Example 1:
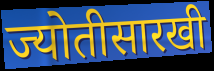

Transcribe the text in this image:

ज्योतीसारखी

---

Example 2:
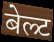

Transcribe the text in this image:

बेल्ट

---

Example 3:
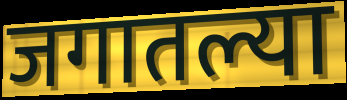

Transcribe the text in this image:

जगातल्या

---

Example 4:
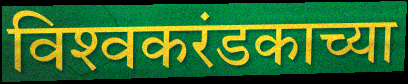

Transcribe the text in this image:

विश्‍वकरंडकाच्या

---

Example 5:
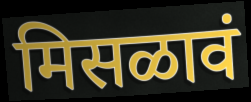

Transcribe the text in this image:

मिसळावं